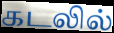
கடலில்